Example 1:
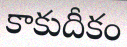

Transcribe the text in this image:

కాకుదీకం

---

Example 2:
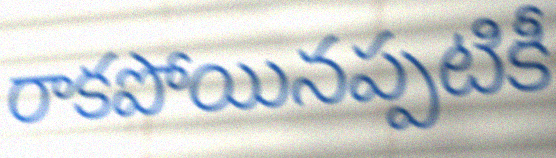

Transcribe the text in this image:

రాకపోయినప్పటికీ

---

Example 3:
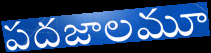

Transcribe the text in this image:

పదజాలమూ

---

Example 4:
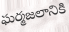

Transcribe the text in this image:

ఘర్మజలానికి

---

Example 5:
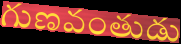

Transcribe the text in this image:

గుణవంతుడు